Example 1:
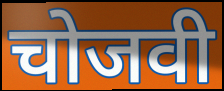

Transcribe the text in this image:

चोजवी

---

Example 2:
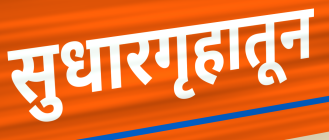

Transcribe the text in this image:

सुधारगृहातून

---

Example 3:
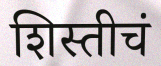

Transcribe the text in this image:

शिस्तीचं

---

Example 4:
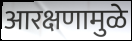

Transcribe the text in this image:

आरक्षणामुळे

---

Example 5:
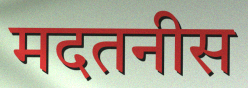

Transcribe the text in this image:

मदतनीस